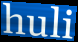
huli